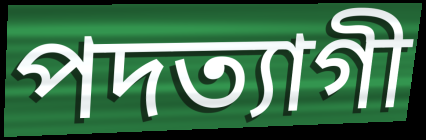
পদত্যাগী